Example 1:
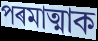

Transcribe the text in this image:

পৰমাত্মাক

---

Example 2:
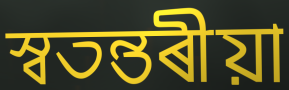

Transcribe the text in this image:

স্বতন্তৰীয়া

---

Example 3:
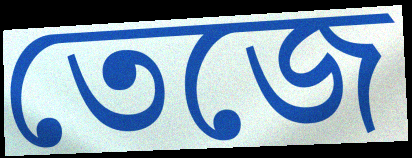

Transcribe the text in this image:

তেজে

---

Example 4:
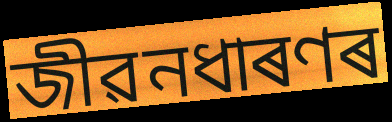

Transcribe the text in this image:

জীৱনধাৰণৰ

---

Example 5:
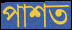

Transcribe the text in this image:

পাশত